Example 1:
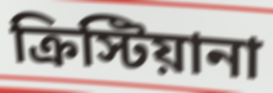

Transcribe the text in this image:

ক্রিস্টিয়ানা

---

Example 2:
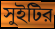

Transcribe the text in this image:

সুইটির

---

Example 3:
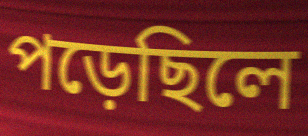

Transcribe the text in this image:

পড়েছিলে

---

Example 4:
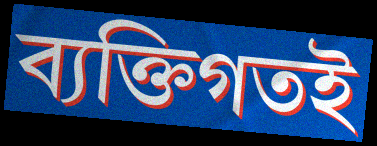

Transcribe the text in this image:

ব্যক্তিগতই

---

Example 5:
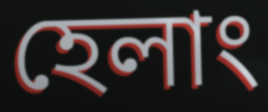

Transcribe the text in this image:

হেলাং